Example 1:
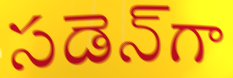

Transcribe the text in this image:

సడెన్‌గా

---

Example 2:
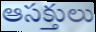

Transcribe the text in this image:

ఆసక్తులు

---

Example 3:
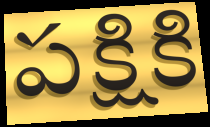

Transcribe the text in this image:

పక్షికి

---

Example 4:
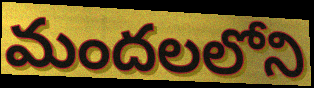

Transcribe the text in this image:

మందలలోని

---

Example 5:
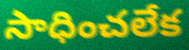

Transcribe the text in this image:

సాధించలేక